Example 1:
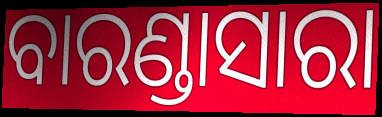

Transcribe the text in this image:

ବାରଣ୍ଡାସାରା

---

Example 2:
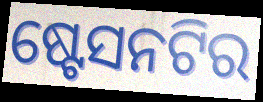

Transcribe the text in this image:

ଷ୍ଟେସନଟିର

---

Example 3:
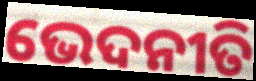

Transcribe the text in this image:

ଭେଦନୀତି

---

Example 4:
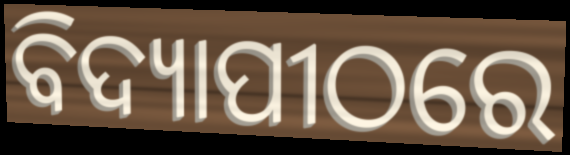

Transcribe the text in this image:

ବିଦ୍ୟାପୀଠରେ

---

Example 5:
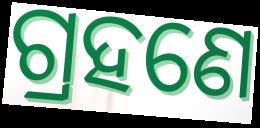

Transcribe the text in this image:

ଗ୍ରହଣେ